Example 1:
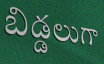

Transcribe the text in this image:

బిడ్డలుగా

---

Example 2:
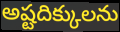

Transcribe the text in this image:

అష్టదిక్కులను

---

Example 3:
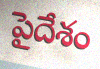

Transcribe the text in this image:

పైదేశం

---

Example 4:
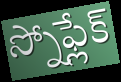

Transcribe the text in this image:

స్నోఫ్లేక్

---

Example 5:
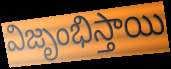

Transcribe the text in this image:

విజృంభిస్తాయి